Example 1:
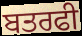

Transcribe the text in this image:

ਬਤਰਫੀ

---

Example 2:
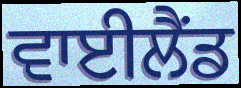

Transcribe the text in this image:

ਵਾਈਲੈਂਡ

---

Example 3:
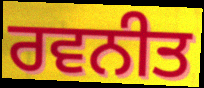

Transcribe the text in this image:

ਰਵਨੀਤ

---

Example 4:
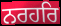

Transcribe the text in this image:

ਨਰਹਰਿ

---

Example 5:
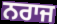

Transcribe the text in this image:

ਨਰਾਜ